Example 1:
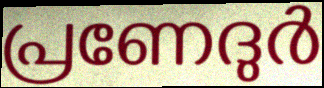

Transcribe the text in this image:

പ്രണേദുർ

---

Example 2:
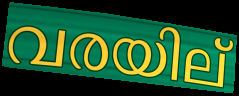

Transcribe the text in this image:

വരയില്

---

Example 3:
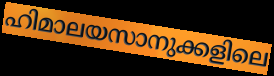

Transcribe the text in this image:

ഹിമാലയസാനുക്കളിലെ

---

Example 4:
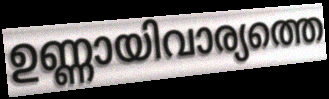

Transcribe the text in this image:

ഉണ്ണായിവാര്യത്തെ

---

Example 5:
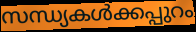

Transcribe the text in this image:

സന്ധ്യകൾക്കപ്പുറം